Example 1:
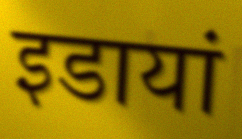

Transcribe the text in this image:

इडायां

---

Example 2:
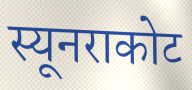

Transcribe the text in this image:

स्यूनराकोट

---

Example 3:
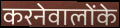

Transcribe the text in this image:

करनेवालोंके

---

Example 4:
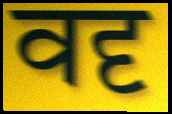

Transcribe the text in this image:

वदृ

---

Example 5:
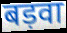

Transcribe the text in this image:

बड़वा